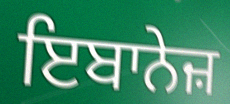
ਇਬਾਨੇਜ਼